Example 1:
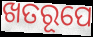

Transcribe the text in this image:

ଖତରୂପେ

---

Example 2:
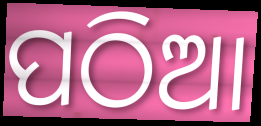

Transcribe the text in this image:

ପଠିଆ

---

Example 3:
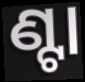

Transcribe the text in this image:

ଣ୍ଟା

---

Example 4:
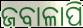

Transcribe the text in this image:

ଜବାଳାପି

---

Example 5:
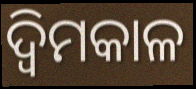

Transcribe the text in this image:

ଦ୍ବିମକାଳ